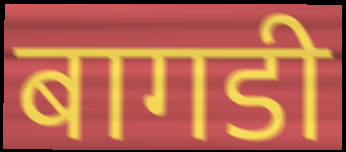
बागडी